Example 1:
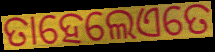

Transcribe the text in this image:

ତାହେଲେଏତେ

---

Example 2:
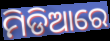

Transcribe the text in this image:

ମିଡିଆରେ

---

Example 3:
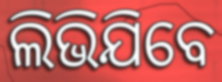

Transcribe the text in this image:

ଲିଭିଯିବେ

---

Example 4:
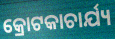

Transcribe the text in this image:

କ୍ରୋଟକାଚାର୍ଯ୍ୟ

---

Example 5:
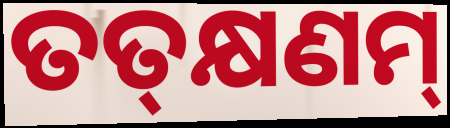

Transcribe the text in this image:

ତତ୍‌କ୍ଷଣମ୍